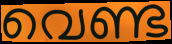
വെണ്ട